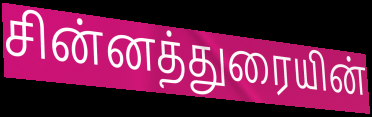
சின்னத்துரையின்